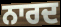
ਨਾਰਦ